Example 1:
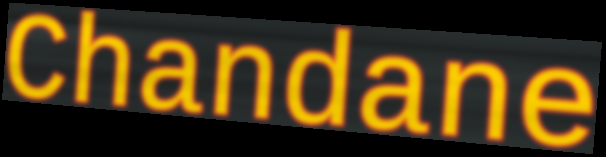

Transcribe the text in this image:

Chandane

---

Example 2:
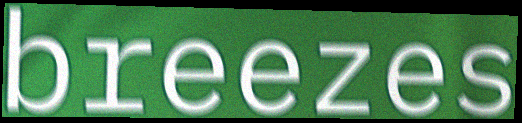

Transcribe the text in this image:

breezes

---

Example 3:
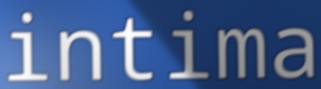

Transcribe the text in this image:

intima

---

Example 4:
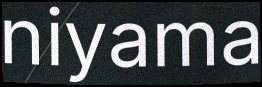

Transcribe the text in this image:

niyama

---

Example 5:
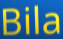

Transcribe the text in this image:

Bila